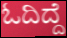
ಓದಿದ್ದೆ